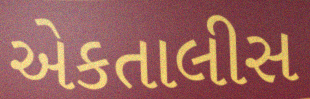
એકતાલીસ